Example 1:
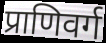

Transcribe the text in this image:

प्राणिवर्ग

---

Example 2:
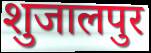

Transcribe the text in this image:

शुजालपुर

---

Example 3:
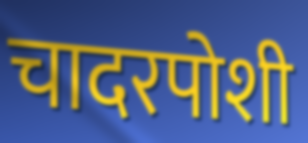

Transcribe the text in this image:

चादरपोशी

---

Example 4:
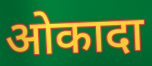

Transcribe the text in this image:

ओकादा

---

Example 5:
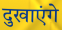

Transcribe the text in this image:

दुखाएंगे